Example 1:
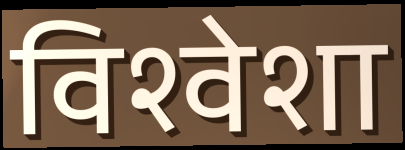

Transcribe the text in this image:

विश्वेशा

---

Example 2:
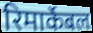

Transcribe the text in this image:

रिमार्केबल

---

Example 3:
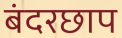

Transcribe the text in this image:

बंदरछाप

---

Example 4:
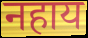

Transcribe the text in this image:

नहाय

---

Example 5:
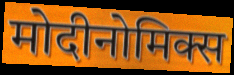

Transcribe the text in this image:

मोदीनोमिक्स